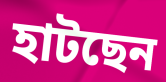
হাটছেন